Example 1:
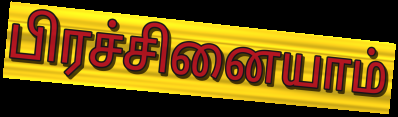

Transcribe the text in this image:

பிரச்சினையாம்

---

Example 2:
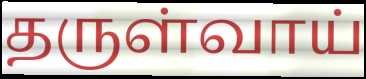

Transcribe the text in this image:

தருள்வாய்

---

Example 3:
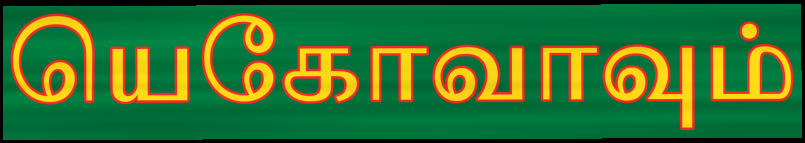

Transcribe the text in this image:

யெகோவாவும்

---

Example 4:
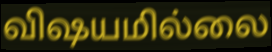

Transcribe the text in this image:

விஷயமில்லை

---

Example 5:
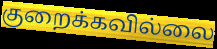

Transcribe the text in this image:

குறைக்கவில்லை